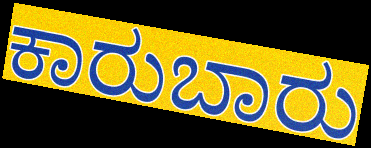
ಕಾರುಬಾರು